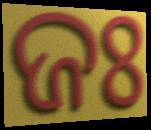
ଜଃ